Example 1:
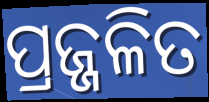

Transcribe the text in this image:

ପ୍ରଜ୍ଜଳିତ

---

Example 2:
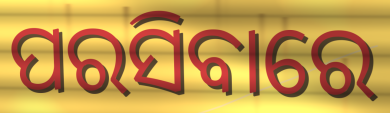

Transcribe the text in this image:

ପରସିବାରେ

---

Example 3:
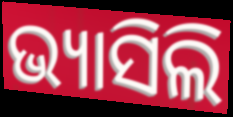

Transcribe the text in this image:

ଭ୍ୟାସିଲି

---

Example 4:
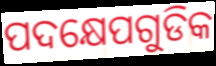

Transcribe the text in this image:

ପଦକ୍ଷେପଗୁଡିକ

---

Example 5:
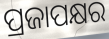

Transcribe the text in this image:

ପ୍ରଜାପକ୍ଷର